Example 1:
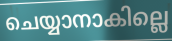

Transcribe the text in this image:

ചെയ്യാനാകില്ലെ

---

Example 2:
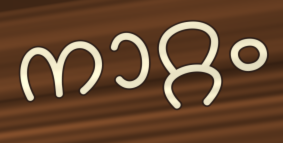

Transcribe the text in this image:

നാറ്റം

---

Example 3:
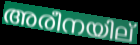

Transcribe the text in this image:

അരീനയില്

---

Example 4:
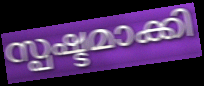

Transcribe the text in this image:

സ്പഷ്ടമാക്കി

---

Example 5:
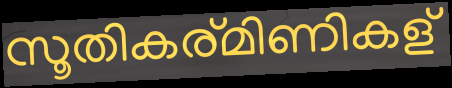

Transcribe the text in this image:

സൂതികര്മിണികള്